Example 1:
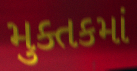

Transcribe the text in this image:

મુક્તકમાં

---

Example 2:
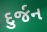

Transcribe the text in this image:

દુર્જન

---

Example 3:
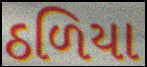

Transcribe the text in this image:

ઠળિયા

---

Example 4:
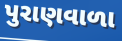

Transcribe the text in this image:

પુરાણવાળા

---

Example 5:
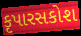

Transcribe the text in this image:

કૃપારસકોશ